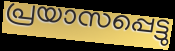
പ്രയാസപ്പെട്ടു